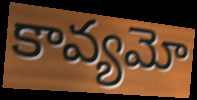
కావ్యమో